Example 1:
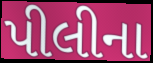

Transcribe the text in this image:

પીલીના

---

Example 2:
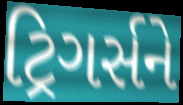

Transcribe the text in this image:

ટ્રિગર્સને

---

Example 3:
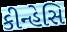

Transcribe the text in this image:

કીન્હેસિ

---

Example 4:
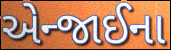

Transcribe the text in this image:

એન્જાઈના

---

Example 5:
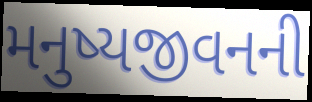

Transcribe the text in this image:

મનુષ્યજીવનની